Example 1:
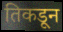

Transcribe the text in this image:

तिकडून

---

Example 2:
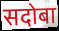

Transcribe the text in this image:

सदोबा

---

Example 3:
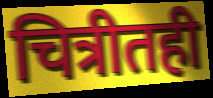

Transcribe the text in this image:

चित्रीतही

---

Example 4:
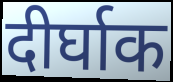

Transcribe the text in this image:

दीर्घाक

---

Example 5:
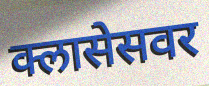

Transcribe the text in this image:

क्लासेसवर